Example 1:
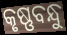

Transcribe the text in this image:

କୃଷ୍ଣବନ୍ଧୁ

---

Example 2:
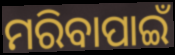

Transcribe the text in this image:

ମରିବାପାଇଁ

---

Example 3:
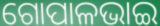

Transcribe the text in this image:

ଗୋପାଳଭାଇ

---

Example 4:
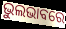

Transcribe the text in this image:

ଭୁଲଭାବରେ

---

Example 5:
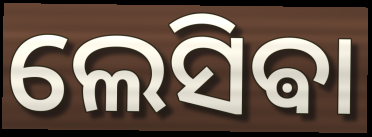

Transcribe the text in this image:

ଲେସିଵା